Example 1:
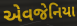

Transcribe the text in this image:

એવજેનિયા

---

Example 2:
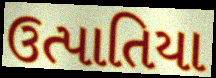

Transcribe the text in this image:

ઉત્પાતિયા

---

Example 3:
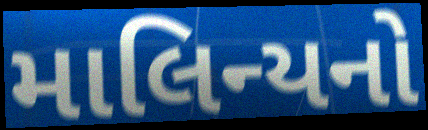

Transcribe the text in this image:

માલિન્યનો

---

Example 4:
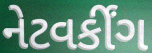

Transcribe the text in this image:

નેટવર્કીંગ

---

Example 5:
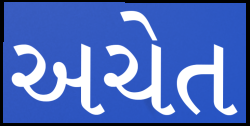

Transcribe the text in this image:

અચેત